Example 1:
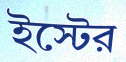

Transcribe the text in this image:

ইস্টের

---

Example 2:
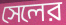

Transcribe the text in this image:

সেলের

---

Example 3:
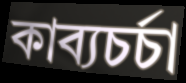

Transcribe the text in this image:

কাব্যচর্চা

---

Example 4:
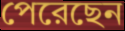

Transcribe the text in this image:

পেরেছেন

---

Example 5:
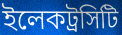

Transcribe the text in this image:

ইলেকট্রসিটি